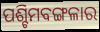
ପଶ୍ଚିମବଙ୍ଗଳାର